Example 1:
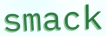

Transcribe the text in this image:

smack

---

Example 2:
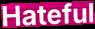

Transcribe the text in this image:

Hateful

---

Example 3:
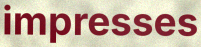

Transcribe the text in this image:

impresses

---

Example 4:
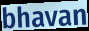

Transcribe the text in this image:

bhavan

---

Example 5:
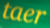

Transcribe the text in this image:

taer